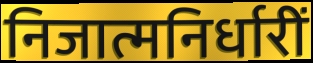
निजात्मनिर्धारीं